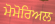
ਮੋਮੋਰਿਅਲ